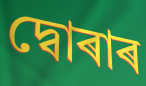
দ্বোৰাৰ